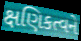
ક્ષણિકત્વને